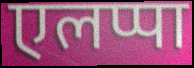
एलप्पा